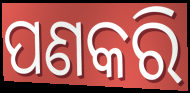
ପଣକରି